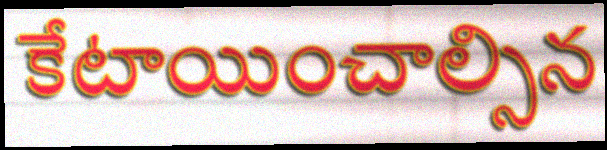
కేటాయించాల్సిన